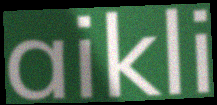
aikli